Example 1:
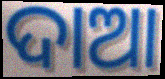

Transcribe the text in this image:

ଦାଆ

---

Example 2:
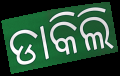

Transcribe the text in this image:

ଡାକିଲି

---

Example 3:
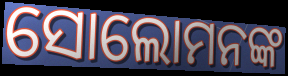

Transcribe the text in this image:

ସୋଲୋମନଙ୍କ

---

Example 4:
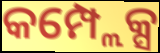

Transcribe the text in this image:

କମ୍ପ୍ଲେକ୍ସ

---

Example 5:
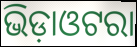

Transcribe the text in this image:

ଭିଡ଼ାଓଟରା